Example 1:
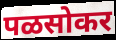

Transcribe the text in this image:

पळसोकर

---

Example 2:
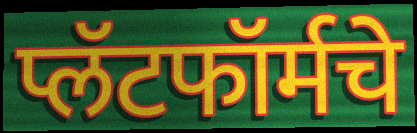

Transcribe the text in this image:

प्लॅटफॉर्मचे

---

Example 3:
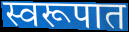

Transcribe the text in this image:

स्वरूपात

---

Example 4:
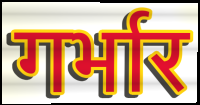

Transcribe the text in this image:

गर्भार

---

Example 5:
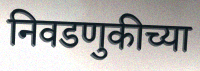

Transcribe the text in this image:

निवडणुकीच्या